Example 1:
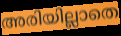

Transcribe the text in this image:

അരിയില്ലാതെ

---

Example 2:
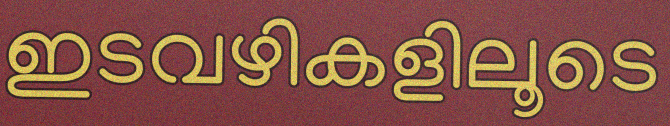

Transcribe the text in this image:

ഇടവഴികളിലൂടെ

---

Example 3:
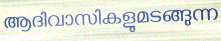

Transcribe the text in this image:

ആദിവാസികളുമടങ്ങുന്ന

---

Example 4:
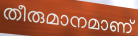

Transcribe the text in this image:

തീരുമാനമാണ്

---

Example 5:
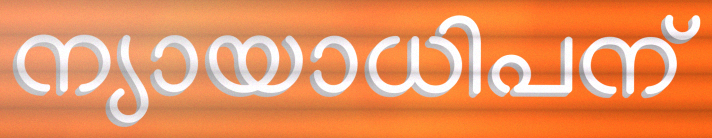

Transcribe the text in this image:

ന്യായാധിപന്